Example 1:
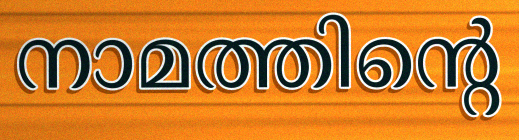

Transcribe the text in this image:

നാമത്തിന്റെ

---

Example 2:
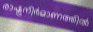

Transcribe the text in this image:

രാഷ്ട്രനിർമാണത്തിൽ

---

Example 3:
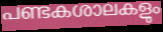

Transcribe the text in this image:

പണ്ടകശാലകളും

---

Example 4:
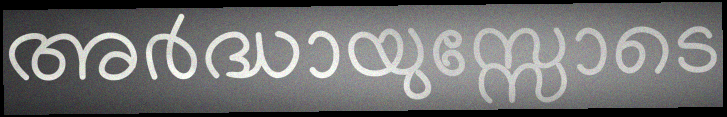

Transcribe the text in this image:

അർദ്ധായുസ്സോടെ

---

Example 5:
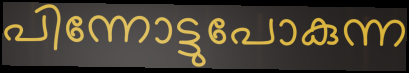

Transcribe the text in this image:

പിന്നോട്ടുപോകുന്ന